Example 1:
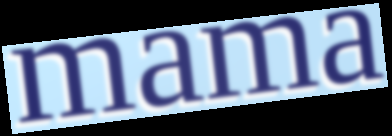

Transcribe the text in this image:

mama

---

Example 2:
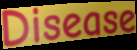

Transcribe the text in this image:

Disease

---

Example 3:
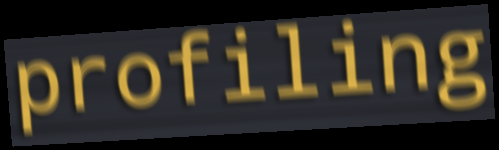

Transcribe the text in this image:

profiling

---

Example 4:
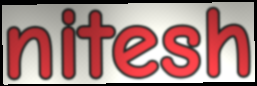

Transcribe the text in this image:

nitesh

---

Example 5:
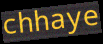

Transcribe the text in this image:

chhaye